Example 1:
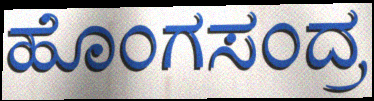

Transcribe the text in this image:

ಹೊಂಗಸಂದ್ರ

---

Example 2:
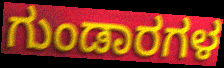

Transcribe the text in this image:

ಗುಂಡಾರಗಳ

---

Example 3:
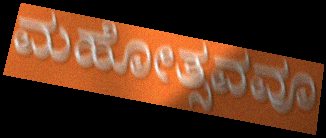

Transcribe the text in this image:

ಮಹೋತ್ಸವವೂ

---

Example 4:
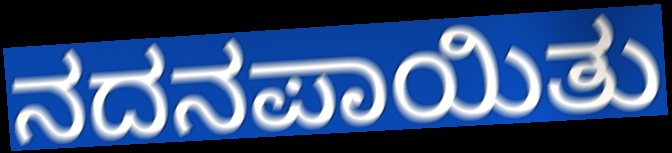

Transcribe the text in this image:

ನದನಪಾಯಿತು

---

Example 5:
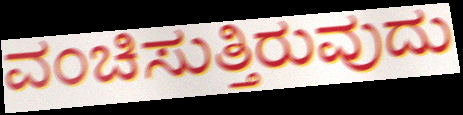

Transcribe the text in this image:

ವಂಚಿಸುತ್ತಿರುವುದು